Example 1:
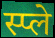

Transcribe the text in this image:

स्प्ले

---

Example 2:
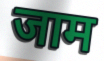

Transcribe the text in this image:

जाम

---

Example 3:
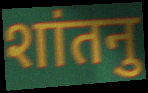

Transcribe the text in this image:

शांतनु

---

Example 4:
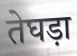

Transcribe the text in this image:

तेघड़ा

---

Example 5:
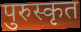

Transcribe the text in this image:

पुरुस्कृत